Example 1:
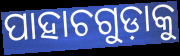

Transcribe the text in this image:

ପାହାଚଗୁଡ଼ାକୁ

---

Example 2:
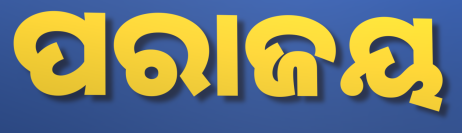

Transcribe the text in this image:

ପରାଜୟ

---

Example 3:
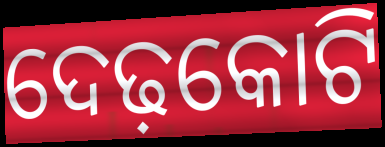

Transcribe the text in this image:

ଦେଢ଼କୋଟି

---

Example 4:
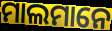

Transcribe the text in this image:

ମାଲମାନେ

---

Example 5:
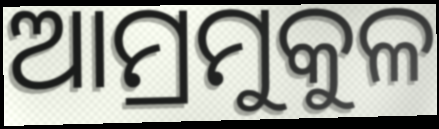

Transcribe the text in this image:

ଆମ୍ରମୁକୁଳ